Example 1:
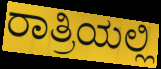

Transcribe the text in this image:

ರಾತ್ರಿಯಲ್ಲಿ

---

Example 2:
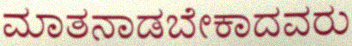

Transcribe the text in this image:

ಮಾತನಾಡಬೇಕಾದವರು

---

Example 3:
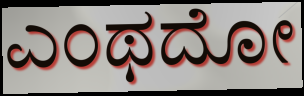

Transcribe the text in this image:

ಎಂಥದೋ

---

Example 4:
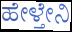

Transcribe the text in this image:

ಹೇಳ್ತೇನಿ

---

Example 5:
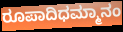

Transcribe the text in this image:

ರೂಪಾದಿಧಮ್ಮಾನಂ